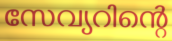
സേവ്യറിന്റെ